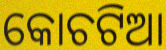
କୋଚଟିଆ